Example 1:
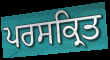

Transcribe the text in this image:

ਪਰਸਕ੍ਰਿਤ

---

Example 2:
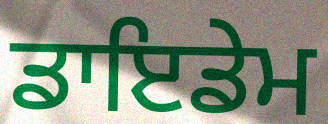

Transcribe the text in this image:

ਡਾਇਡੇਮ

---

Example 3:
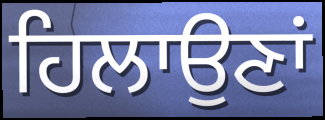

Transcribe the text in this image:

ਹਿਲਾਉਣਾਂ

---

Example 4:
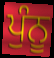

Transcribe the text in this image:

ਪੁੰਨੂ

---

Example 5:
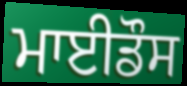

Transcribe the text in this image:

ਮਾਈਡੌਸ